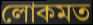
লোকমত